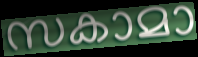
സകാമാ